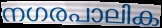
നഗരപാലിക